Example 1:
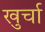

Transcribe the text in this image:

खुर्चा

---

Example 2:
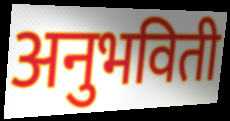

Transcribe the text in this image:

अनुभविती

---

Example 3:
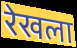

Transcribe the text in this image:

रेखला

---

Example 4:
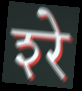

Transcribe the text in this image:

श्रे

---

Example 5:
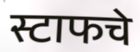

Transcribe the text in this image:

स्टाफचे